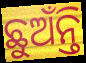
ଛୁଅଁନ୍ତି